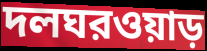
দলঘরওয়াড়